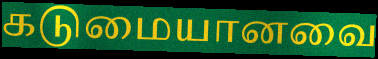
கடுமையானவை